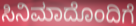
ಸಿನಿಮಾದೊಂದಿಗೆ